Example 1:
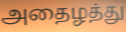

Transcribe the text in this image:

அதைழத்து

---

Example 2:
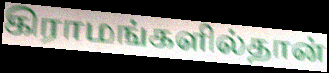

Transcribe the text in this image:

கிராமங்களில்தான்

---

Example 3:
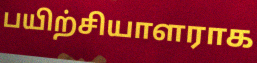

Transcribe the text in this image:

பயிற்சியாளராக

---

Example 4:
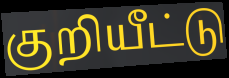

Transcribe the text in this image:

குறியீட்டு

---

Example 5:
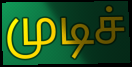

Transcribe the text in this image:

முடிச்